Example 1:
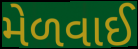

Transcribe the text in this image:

મેળવાઈ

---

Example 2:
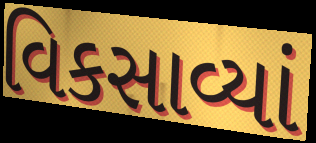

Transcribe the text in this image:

વિકસાવ્યાં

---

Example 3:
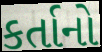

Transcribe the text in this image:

કર્તાનો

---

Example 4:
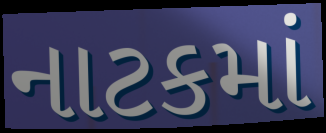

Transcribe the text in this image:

નાટકમાં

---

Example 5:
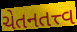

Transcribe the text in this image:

ચેતનતત્ત્વ